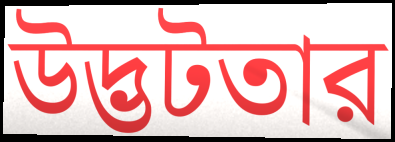
উদ্ভটতার